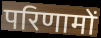
परिणामों